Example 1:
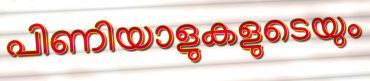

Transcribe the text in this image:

പിണിയാളുകളുടെയും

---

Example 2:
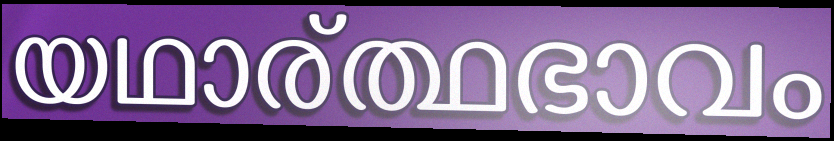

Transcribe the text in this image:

യഥാര്ത്ഥഭാവം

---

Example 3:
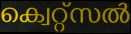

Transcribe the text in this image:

ക്വെറ്റ്സൽ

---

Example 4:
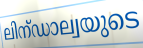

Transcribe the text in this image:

ലിന്ഡാല്വയുടെ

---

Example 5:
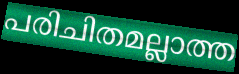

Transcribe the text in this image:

പരിചിതമല്ലാത്ത